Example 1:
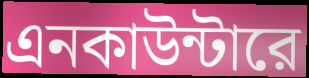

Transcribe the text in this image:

এনকাউন্টারে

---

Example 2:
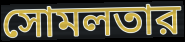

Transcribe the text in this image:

সোমলতার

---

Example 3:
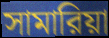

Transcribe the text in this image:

সামারিয়া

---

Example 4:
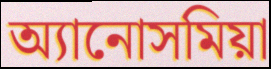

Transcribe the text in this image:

অ্যানোসমিয়া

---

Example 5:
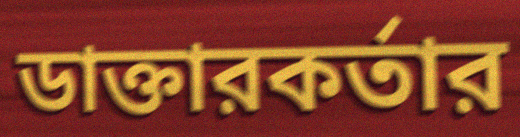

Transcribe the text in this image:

ডাক্তারকর্তার